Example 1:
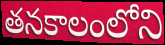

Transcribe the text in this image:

తనకాలంలోని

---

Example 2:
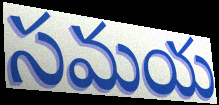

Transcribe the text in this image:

సమయ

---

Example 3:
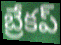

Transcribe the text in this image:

బ్రేకప్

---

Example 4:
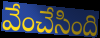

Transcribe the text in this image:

వేంచేసింది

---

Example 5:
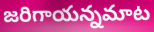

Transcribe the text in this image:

జరిగాయన్నమాట